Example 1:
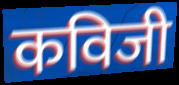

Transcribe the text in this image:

कविजी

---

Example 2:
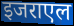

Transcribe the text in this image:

इजराएल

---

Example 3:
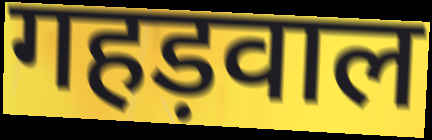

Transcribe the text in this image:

गहड़वाल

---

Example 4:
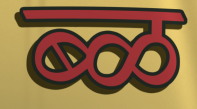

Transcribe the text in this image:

ब्ळ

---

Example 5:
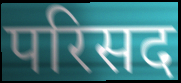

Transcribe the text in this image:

परिसद